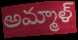
అమ్మాళ్